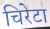
चिरेटा